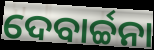
ଦେବାର୍ଚ୍ଚନା